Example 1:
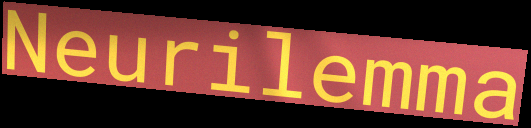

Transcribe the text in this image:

Neurilemma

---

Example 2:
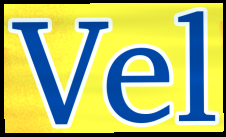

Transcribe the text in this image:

Vel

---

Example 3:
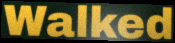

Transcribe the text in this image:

Walked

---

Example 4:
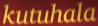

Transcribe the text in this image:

kutuhala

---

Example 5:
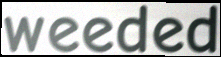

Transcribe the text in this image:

weeded